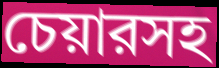
চেয়ারসহ